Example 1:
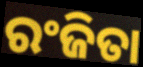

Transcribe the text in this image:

ରଂଜିତା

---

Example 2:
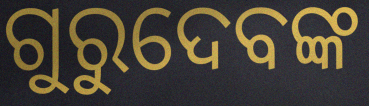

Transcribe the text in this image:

ଗୁରୁଦେବଙ୍କ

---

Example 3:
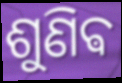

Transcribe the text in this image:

ଶୁଣିଵ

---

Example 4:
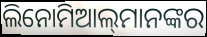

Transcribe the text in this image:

ଲିନୋମିଆଲ୍‌ମାନଙ୍କର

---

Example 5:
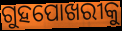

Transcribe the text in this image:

ଗୁହପୋଖରୀକୁ